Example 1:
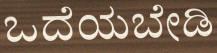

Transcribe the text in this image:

ಒದೆಯಬೇಡಿ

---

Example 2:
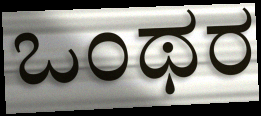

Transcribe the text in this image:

ಒಂಥರ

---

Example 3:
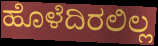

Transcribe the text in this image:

ಹೊಳೆದಿರಲಿಲ್ಲ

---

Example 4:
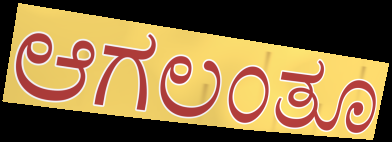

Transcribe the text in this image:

ಆಗಲಂತೂ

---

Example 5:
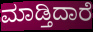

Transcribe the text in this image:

ಮಾಡ್ತಿದಾರೆ